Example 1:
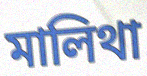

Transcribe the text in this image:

মালিথা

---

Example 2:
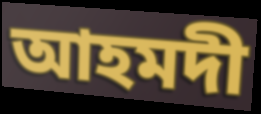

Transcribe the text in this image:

আহমদী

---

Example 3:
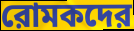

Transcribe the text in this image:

রোমকদের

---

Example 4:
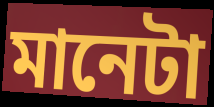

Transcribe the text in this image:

মানেটা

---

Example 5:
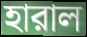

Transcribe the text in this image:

হারাল